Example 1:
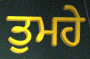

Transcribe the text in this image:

ਤੁਮਹੇ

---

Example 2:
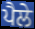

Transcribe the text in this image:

ਪੈਲੇ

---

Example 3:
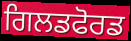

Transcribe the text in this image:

ਗਿਲਡਫੋਰਡ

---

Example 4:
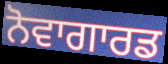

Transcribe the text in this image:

ਨੋਵਾਗਾਰਡ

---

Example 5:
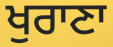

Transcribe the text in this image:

ਖੁਰਾਣਾ